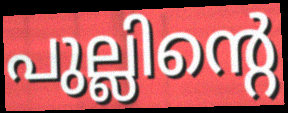
പുല്ലിന്റെ